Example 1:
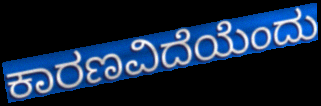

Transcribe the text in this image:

ಕಾರಣವಿದೆಯೆಂದು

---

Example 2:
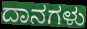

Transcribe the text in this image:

ದಾನಗಳು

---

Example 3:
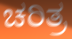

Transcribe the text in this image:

ಚರಿತ್ರ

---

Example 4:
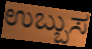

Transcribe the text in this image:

ಉಬ್ಬುಸ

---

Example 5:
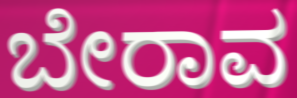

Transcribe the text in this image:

ಬೇರಾವ